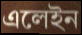
এলেইন